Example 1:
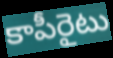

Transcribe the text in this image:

కాపీరైటు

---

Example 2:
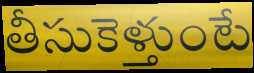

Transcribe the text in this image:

తీసుకెళ్తుంటే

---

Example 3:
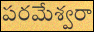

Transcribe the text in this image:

పరమేశ్వరా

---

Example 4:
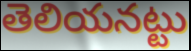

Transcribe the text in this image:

తెలియనట్టు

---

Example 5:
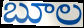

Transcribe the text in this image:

బూల